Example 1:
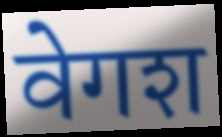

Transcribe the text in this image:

वेगश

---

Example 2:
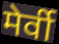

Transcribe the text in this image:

मेर्वी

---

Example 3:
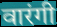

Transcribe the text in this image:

वारंगी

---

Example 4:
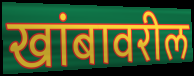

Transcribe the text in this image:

खांबावरील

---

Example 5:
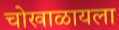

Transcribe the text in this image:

चोखाळायला